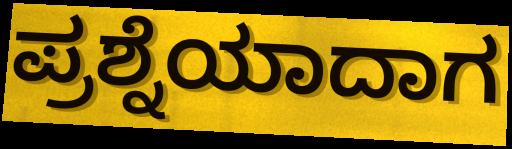
ಪ್ರಶ್ನೆಯಾದಾಗ